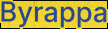
Byrappa